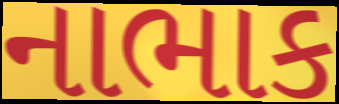
નાભાક